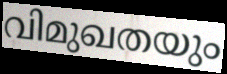
വിമുഖതയും